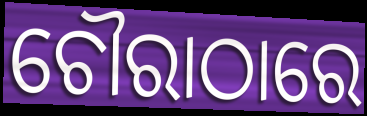
ଚୌରାଠାରେ